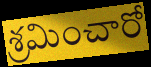
శ్రమించారో